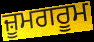
ਜ਼ੂਮਗਰੂਮ